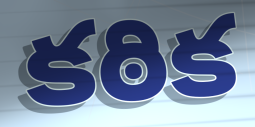
కఠిక